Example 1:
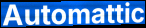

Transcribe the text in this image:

Automattic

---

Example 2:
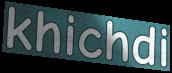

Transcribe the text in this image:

khichdi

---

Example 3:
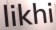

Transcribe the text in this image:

likhi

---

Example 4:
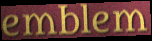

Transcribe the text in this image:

emblem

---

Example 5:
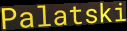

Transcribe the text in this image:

Palatski